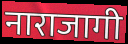
नाराजागी